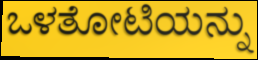
ಒಳತೋಟಿಯನ್ನು